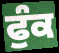
ਫੁੰਕ